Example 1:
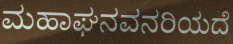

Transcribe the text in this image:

ಮಹಾಘನವನರಿಯದೆ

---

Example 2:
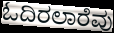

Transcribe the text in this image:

ಓದಿರಲಾರೆವು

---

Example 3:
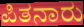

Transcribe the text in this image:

ಪಿತನಾರು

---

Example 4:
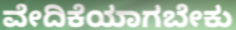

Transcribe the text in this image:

ವೇದಿಕೆಯಾಗಬೇಕು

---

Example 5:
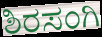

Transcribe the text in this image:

ಶಿರಸಂಗಿ